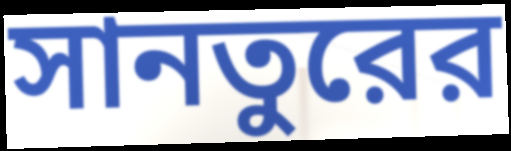
সানতুরের